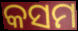
କସମ